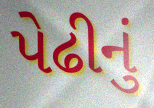
પેઢીનું